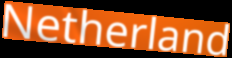
Netherland